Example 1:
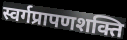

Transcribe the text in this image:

स्वर्गप्रापणशक्ति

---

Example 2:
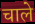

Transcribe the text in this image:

चाले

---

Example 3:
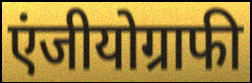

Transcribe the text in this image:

एंजीयोग्राफी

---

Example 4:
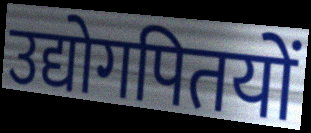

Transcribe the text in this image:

उद्योगपितयों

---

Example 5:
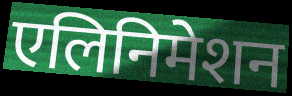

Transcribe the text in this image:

एलिनिमेशन